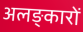
अलङ्कारों